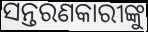
ସନ୍ତରଣକାରୀଙ୍କୁ